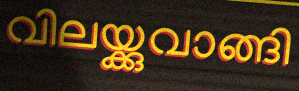
വിലയ്ക്കുവാങ്ങി